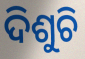
ଦିଶୁଚି